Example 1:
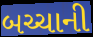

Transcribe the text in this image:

બચ્ચાની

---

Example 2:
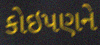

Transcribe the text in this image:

કોઇપણને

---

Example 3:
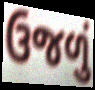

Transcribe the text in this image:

ઉજળું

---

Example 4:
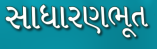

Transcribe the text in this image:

સાધારણભૂત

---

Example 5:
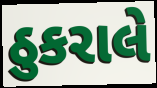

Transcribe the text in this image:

ઠુકરાલે